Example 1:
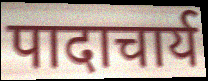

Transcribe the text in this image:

पादाचार्य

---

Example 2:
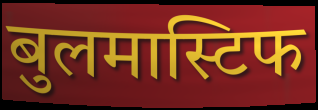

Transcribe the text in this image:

बुलमास्टिफ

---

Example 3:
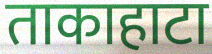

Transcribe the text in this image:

ताकाहाटा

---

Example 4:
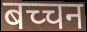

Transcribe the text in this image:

बच्‍चन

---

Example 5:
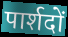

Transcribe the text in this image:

पार्शदों